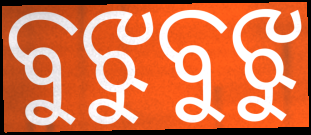
ବୁଝୁବୁଝୁ